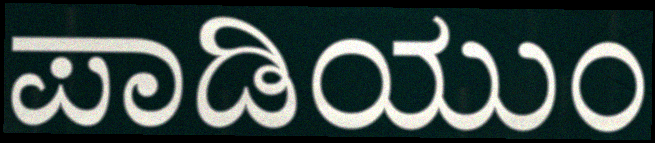
ಪಾಡಿಯುಂ